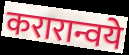
करारान्वये